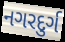
નગરદુર્ગ